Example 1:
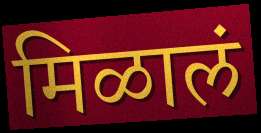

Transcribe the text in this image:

मिळालं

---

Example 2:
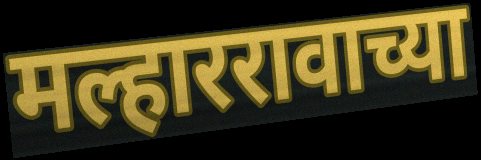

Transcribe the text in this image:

मल्हाररावाच्या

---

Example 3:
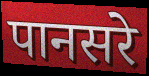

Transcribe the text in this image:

पानसरे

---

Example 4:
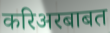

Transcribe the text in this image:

करिअरबाबत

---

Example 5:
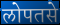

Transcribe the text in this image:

लोपतसे